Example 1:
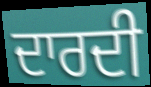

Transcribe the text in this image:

ਦਾਰਦੀ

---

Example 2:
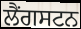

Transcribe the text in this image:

ਲੈਂਗਸਟਨ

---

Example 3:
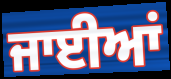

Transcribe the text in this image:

ਜਾਈਆਂ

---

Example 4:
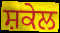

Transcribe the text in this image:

ਸ਼ਕੇਲ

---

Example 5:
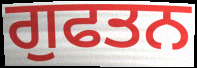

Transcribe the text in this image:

ਗੁਫਤਨ